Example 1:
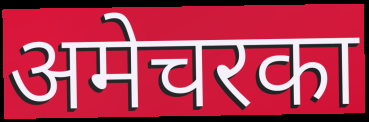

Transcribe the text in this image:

अमेचरका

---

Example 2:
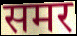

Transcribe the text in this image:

समर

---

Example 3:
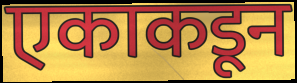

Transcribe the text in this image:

एकाकडून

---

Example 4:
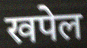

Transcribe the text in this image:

खपेल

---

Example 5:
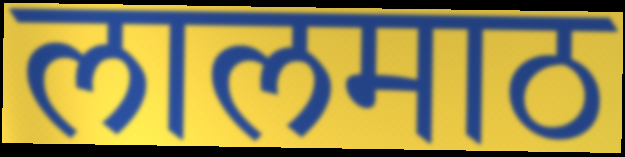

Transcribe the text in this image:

लालमाठ